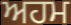
ਅਹਮ